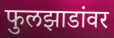
फुलझाडांवर